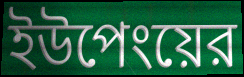
ইউপেংয়ের